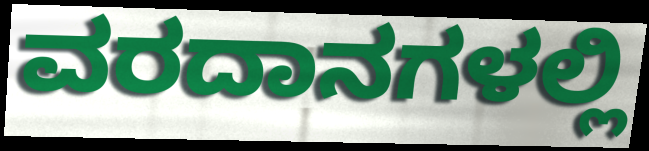
ವರದಾನಗಳಲ್ಲಿ